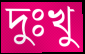
দুঃখু